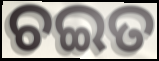
ଚଇତ